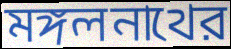
মঙ্গলনাথের